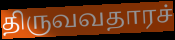
திருவவதாரச்